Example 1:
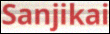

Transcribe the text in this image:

Sanjikai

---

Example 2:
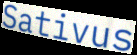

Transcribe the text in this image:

Sativus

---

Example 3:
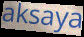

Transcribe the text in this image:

aksaya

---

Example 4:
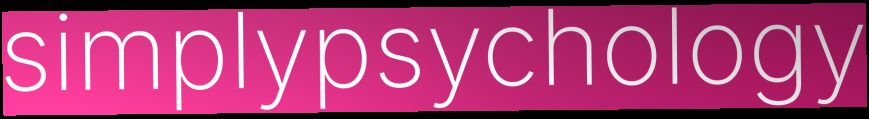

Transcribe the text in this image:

simplypsychology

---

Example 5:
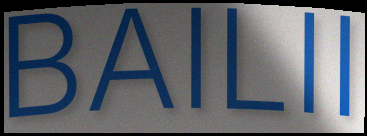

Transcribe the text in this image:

BAILII